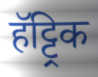
हॅट्ट्रिक